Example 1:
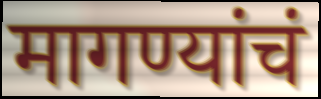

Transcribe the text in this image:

मागण्यांचं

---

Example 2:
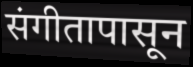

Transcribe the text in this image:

संगीतापासून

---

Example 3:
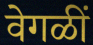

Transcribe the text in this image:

वेगळीं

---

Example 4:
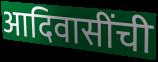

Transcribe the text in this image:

आदिवासींची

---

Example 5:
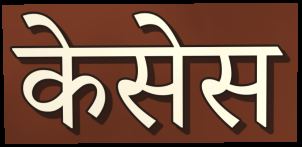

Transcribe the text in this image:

केसेस